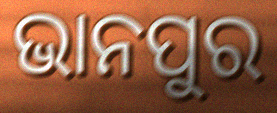
ଭାନପୁର